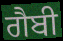
ਗੈਬੀ